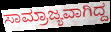
ಸಾಮ್ರಾಜ್ಯವಾಗಿದ್ದ